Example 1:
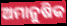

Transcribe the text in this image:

ଅମାନୁଷିକ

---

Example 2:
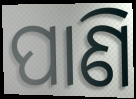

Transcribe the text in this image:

ପାଣି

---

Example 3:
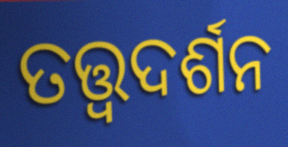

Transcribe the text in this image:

ତତ୍ତ୍ଵଦର୍ଶନ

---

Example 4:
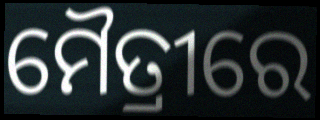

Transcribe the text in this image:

ମୈତ୍ରୀରେ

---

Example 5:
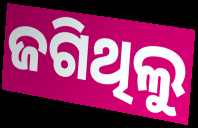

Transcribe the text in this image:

ଜଗିଥିଲୁ